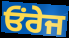
ਓਂਰੇਜ